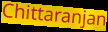
Chittaranjan